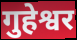
गुहेश्वर